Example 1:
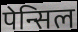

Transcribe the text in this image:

पेन्सिल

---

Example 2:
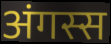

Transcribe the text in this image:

अंगस्स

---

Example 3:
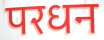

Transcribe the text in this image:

परधन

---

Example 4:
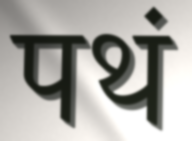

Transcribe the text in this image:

पथं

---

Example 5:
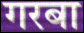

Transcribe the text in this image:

गरबा